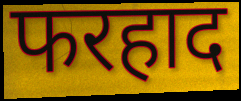
फरहाद